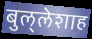
बुल्लेशाह